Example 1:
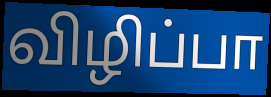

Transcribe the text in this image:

விழிப்பா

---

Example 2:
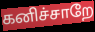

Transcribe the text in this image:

கனிச்சாறே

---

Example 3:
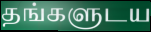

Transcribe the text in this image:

தங்களுடய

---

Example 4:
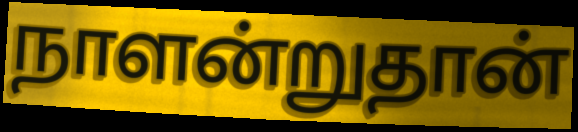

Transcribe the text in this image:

நாளன்றுதான்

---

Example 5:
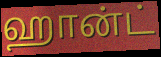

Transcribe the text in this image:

ஹான்ட்